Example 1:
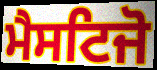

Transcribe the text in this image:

ਮੈਸਟਿਜੋ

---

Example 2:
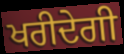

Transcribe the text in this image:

ਖਰੀਦੇਗੀ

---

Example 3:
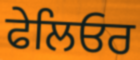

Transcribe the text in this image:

ਫੇਲਿਓਰ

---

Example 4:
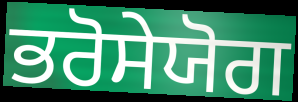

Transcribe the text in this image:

ਭਰੋਸੇਯੋਗ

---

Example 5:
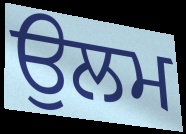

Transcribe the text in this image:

ਉਲਮ